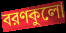
বরণকুলো